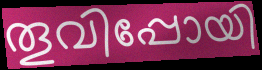
തൂവിപ്പോയി